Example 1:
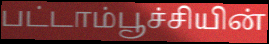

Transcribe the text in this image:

பட்டாம்பூச்சியின்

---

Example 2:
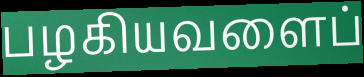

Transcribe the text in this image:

பழகியவளைப்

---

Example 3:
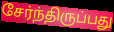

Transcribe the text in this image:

சேர்ந்திருப்பது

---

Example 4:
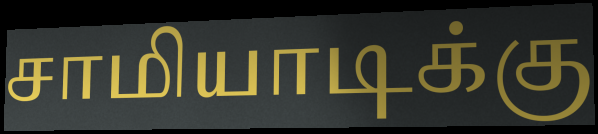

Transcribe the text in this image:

சாமியாடிக்கு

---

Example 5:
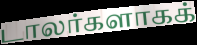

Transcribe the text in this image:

டாலர்களாகக்